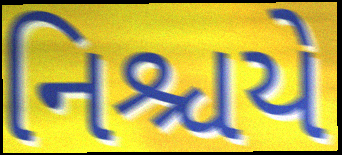
નિશ્ચયે